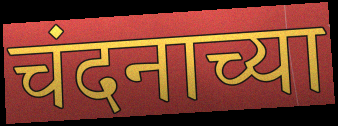
चंदनाच्या